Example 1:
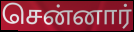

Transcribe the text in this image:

சென்னார்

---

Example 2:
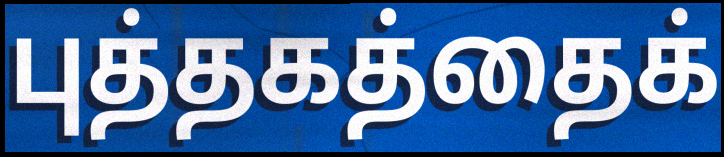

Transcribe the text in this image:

புத்தகத்தைக்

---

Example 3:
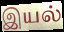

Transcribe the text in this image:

இயல்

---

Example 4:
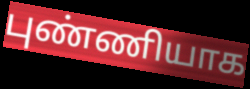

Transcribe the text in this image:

புண்ணியாக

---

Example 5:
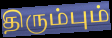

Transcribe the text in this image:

திரும்பும்